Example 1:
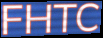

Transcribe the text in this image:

FHTC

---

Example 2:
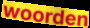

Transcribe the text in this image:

woorden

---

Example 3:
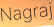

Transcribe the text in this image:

Nagraj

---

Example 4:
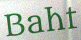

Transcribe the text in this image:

Baht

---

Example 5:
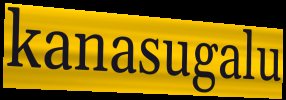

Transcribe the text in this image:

kanasugalu